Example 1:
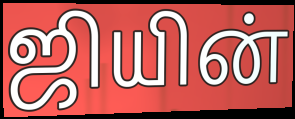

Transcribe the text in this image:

ஜியின்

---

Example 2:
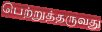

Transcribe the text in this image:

பெற்றுத்தருவது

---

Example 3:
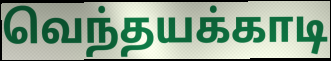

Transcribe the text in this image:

வெந்தயக்காடி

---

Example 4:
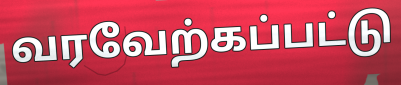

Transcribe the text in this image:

வரவேற்கப்பட்டு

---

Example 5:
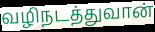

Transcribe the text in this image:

வழிநடத்துவான்